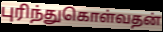
புரிந்துகொள்வதன்